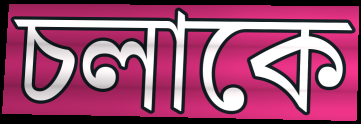
চলাকে